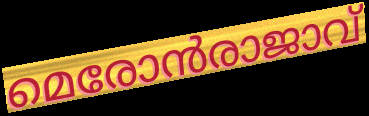
മെരോൻരാജാവ്